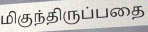
மிகுந்திருப்பதை